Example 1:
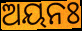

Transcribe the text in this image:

ଅୟନଃ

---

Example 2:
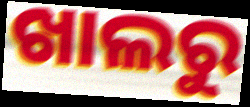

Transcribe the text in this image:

ଖାଲରୁ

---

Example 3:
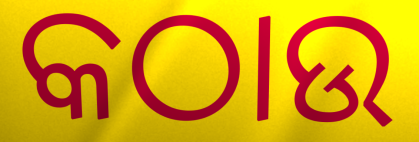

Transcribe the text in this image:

କଠାଉ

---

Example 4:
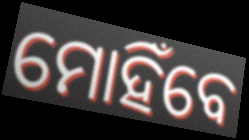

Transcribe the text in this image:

ମୋହିଁବେ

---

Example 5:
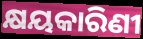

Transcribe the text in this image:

କ୍ଷୟକାରିଣୀ